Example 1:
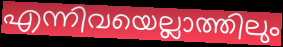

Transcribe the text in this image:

എന്നിവയെല്ലാത്തിലും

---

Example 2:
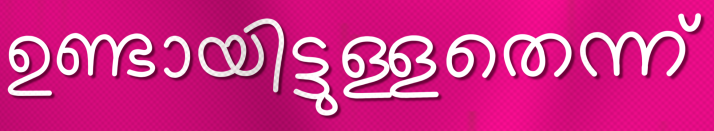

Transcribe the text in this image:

ഉണ്ടായിട്ടുള്ളതെന്ന്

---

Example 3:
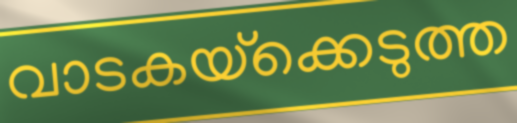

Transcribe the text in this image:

വാടകയ്‌ക്കെടുത്ത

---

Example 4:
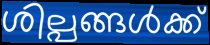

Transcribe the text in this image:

ശില്പങ്ങൾക്ക്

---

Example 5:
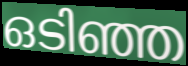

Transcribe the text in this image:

ഒടിഞ്ഞ